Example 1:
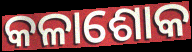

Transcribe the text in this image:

କଳାଶୋକ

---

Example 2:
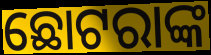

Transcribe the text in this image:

ଛୋଟରାଙ୍କ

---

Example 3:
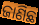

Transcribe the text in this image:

ଜାଣିଛ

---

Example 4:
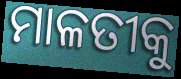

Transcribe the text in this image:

ମାଳତୀକୁ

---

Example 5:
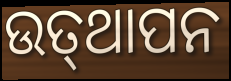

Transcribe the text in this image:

ଉତ୍‍ଥାପନ